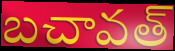
బచావత్